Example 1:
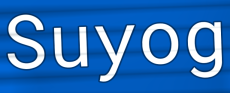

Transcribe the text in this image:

Suyog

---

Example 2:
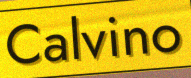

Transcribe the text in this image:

Calvino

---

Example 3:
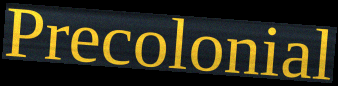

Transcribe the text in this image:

Precolonial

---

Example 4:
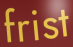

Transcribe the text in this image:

frist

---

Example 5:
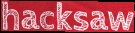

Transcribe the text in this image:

hacksaw